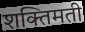
शक्तिमती